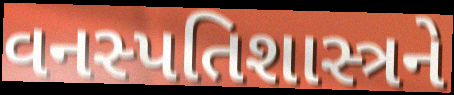
વનસ્પતિશાસ્ત્રને